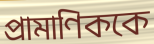
প্রামাণিককে